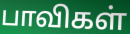
பாவிகள்